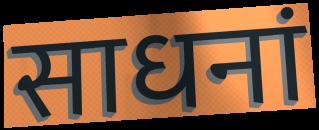
साधनां